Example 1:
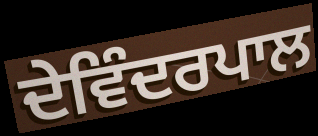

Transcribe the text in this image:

ਦੇਵਿੰਦਰਪਾਲ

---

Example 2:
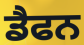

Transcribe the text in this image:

ਡੈਫਨ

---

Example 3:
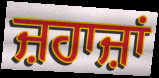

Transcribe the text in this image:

ਜ਼ਹਾਜ਼ਾਂ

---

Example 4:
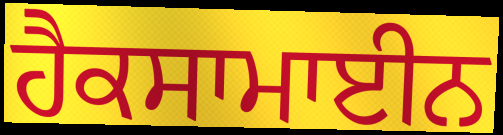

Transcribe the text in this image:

ਹੈਕਸਾਮਾਈਨ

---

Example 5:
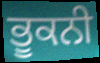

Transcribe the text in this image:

ਭੂਕਨੀ